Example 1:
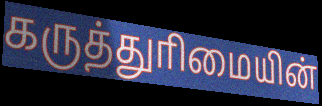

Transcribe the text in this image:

கருத்துரிமையின்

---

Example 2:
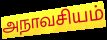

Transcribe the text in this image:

அநாவசியம்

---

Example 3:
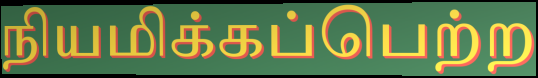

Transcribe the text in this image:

நியமிக்கப்பெற்ற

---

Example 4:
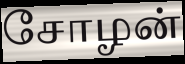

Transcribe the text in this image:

சோழன்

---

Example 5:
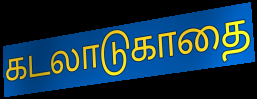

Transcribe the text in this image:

கடலாடுகாதை